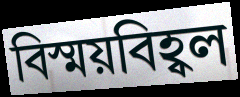
বিস্ময়বিহ্বল